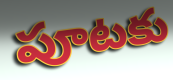
పూటకు